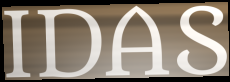
IDAS